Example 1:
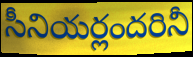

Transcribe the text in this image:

సీనియర్లందరినీ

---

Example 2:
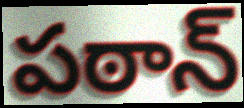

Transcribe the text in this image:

పఠాన్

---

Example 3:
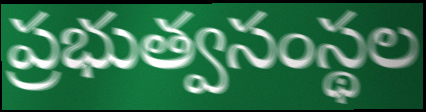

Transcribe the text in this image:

ప్రభుత్వసంస్థల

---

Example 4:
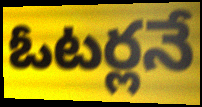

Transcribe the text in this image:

ఓటర్లనే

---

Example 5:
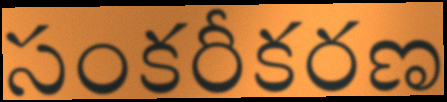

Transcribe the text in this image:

సంకరీకరణ